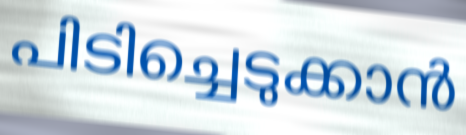
പിടിച്ചെടുക്കാൻ